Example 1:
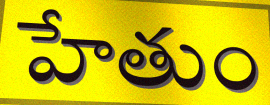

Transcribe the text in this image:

హేతుం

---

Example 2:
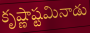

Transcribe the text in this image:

కృష్ణాష్టమినాడు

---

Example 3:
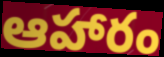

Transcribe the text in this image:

ఆహారం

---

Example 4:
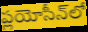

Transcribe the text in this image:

ప్లయోసీన్‌లో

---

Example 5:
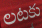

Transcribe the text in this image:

లటకు